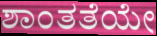
ಶಾಂತತೆಯೇ